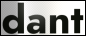
dant